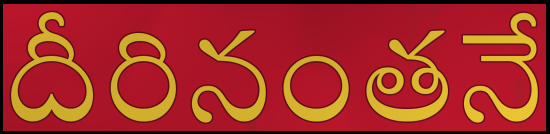
దీరినంతనే